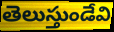
తెలుస్తుండేవి